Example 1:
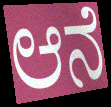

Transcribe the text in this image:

ಆನೆ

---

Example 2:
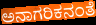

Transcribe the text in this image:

ಅನಾಗರಿಕನಂತೆ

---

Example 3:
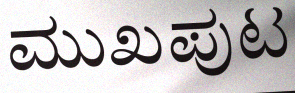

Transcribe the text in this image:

ಮುಖಪುಟ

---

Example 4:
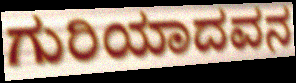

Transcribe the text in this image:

ಗುರಿಯಾದವನ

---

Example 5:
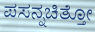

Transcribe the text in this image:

ಪಸನ್ನಚಿತ್ತೋ